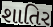
શાતિર